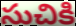
సుచికి